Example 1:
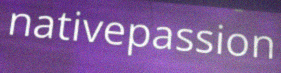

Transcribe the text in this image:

nativepassion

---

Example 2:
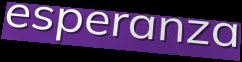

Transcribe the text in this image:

esperanza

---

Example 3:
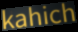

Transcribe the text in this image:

kahich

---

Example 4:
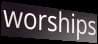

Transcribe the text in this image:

worships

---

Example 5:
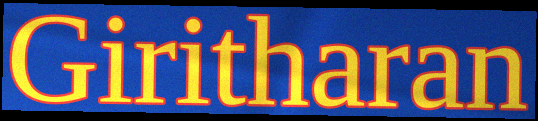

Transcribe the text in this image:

Giritharan